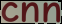
cnn